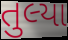
તુલ્યા